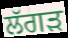
ਲੱਗੜ